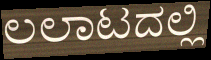
ಲಲಾಟದಲ್ಲಿ